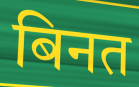
बिनत